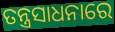
ତନ୍ତ୍ରସାଧନାରେ